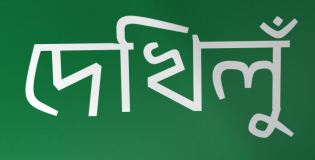
দেখিলুঁ